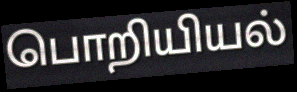
பொறியியல்